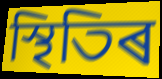
স্থিতিৰ